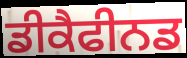
ਡੀਕੈਫੀਨਡ